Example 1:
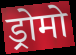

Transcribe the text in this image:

ड्रोमो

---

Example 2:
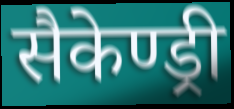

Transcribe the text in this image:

सैकेण्ड्री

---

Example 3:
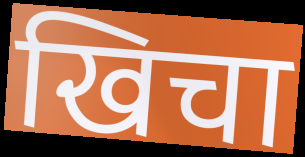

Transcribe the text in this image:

खिचा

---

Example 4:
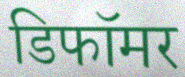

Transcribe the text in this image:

डिफॉमर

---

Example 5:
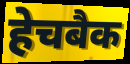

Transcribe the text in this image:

हेचबैक